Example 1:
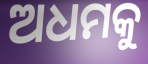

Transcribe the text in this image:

ଅଧମକୁ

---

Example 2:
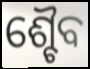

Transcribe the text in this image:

ଶ୍ଚୈବ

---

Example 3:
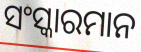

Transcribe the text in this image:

ସଂସ୍କାରମାନ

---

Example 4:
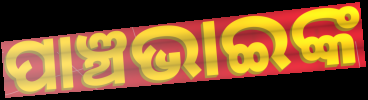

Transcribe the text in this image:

ପାଞ୍ଚଭାଇଙ୍କ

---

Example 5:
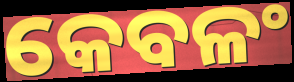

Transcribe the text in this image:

କେବଳଂ